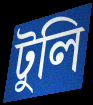
টুলি